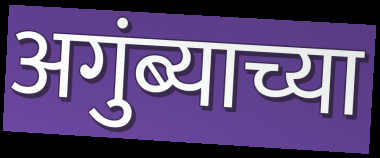
अगुंब्याच्या